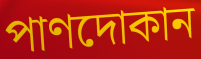
পাণদোকান